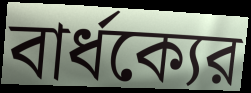
বার্ধক্যের